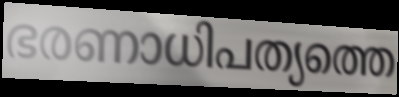
ഭരണാധിപത്യത്തെ